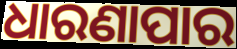
ଧାରଣାପାର